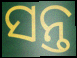
ସନ୍ତ